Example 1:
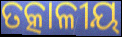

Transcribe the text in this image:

ତତ୍କାଳୀୟ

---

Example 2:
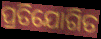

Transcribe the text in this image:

ପ୍ରତିଯୋଗିତ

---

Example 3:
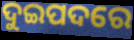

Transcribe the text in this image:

ଦୁଇପଦରେ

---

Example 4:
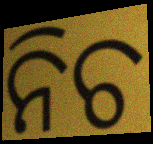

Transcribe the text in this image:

ନିଚ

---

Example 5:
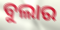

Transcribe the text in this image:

ବୁଲାର